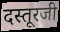
दस्तूरजी